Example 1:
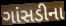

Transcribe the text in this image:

ગાંસડીના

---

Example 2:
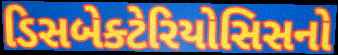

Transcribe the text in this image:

ડિસબેક્ટેરિયોસિસનો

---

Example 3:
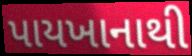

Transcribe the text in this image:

પાયખાનાથી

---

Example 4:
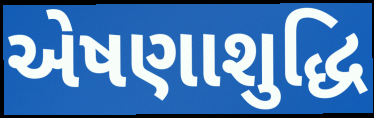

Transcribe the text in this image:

એષણાશુદ્ધિ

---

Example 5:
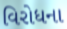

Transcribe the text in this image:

વિરોધના